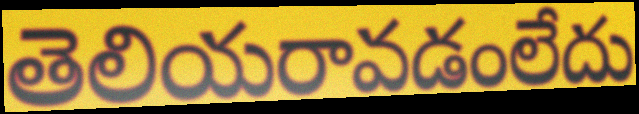
తెలియరావడంలేదు